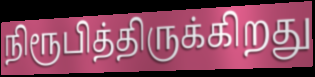
நிரூபித்திருக்கிறது